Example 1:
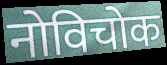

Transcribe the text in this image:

नोविचोक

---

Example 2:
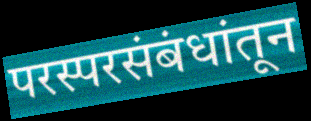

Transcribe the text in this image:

परस्परसंबंधांतून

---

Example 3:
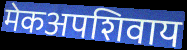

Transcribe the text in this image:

मेकअपशिवाय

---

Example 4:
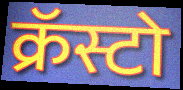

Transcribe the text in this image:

क्रॅस्टो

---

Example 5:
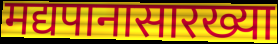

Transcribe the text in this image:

मद्यपानासारख्या